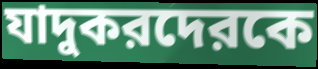
যাদুকরদেরকে